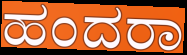
ಹಂದರಾ